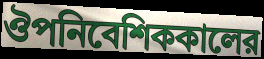
ঔপনিবেশিককালের